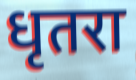
धृतरा